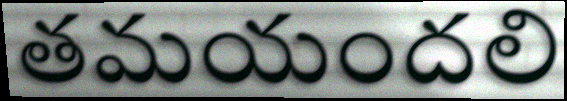
తమయందలి